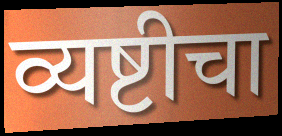
व्यष्टीचा